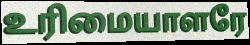
உரிமையாளரே